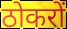
ठोकरों